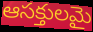
ఆసక్తులమై